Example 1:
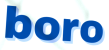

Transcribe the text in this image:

boro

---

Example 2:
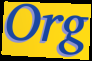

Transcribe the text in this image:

Org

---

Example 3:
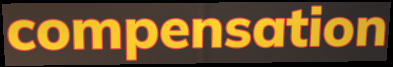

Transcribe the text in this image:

compensation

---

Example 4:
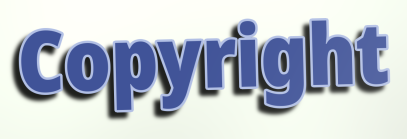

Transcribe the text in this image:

Copyright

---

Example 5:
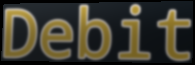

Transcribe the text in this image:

Debit